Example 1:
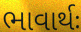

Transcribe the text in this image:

ભાવાર્થઃ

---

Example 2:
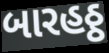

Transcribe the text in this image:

બારહઠ્ઠ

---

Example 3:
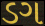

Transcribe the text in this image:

ડગ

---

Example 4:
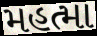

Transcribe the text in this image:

મહત્મા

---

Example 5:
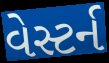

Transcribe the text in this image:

વેસ્ટર્ન